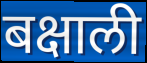
बक्षाली